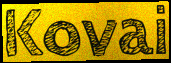
Kovai